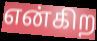
என்கிற